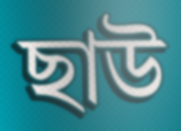
ছাউ